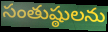
సంతుష్ఠులను